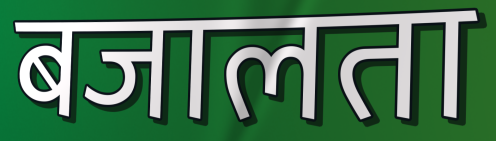
बजालता